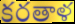
కరతాళ